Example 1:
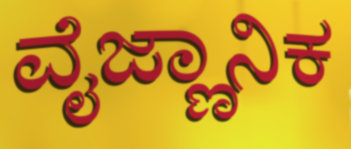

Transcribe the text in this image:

ವೈಜ್ಣಾನಿಕ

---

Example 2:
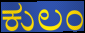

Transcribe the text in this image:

ಕುಲಂ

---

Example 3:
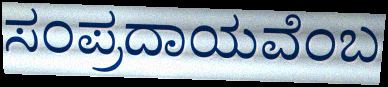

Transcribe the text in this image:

ಸಂಪ್ರದಾಯವೆಂಬ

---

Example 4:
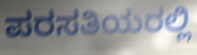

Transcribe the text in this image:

ಪರಸತಿಯರಲ್ಲಿ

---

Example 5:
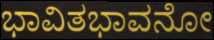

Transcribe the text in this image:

ಭಾವಿತಭಾವನೋ